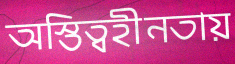
অস্তিত্বহীনতায়